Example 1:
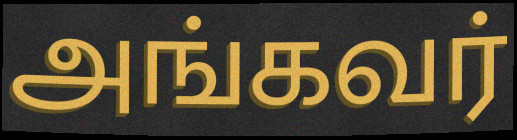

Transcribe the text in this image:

அங்கவர்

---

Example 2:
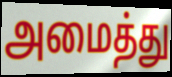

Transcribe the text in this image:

அமைத்து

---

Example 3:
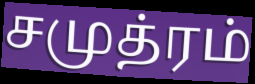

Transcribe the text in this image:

சமுத்ரம்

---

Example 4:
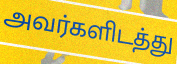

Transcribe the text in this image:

அவர்களிடத்து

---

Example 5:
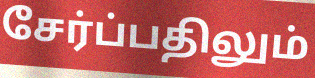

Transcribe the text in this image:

சேர்ப்பதிலும்